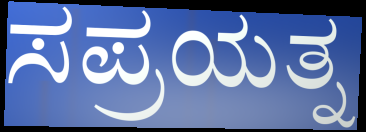
ಸಪ್ರಯತ್ನ